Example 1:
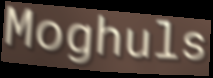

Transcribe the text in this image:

Moghuls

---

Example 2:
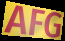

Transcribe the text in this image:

AFG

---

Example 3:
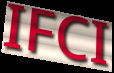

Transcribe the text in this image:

IFCI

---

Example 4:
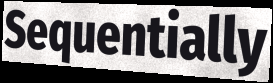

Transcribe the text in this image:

Sequentially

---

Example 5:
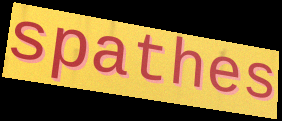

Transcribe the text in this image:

spathes